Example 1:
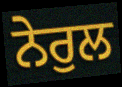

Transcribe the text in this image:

ਨੇਰੁਲ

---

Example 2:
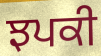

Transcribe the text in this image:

ਝਪਕੀ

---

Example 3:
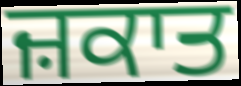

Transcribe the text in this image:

ਜ਼ਕਾਤ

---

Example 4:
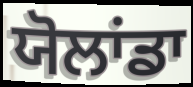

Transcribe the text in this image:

ਯੋਲਾਂਡਾ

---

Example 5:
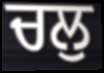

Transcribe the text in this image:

ਚਲੁ